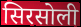
सिरसोली